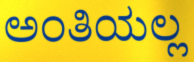
ಅಂತಿಯಲ್ಲ